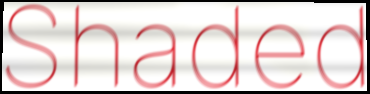
Shaded